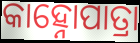
କାହ୍ନୋପାତ୍ରା